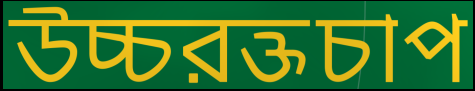
উচ্চরক্তচাপ